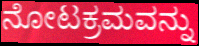
ನೋಟಕ್ರಮವನ್ನು